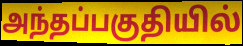
அந்தப்பகுதியில்